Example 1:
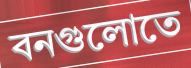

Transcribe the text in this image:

বনগুলোতে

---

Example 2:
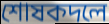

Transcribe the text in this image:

শোষকদলে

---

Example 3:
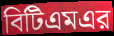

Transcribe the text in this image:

বিটিএমএর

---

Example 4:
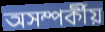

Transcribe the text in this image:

অসম্পর্কীয়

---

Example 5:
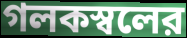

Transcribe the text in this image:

গলকস্বলের